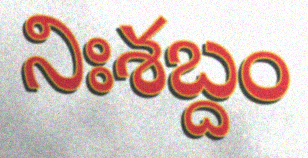
నిఃశబ్దం